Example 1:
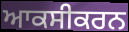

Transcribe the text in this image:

ਆਕਸੀਕਰਨ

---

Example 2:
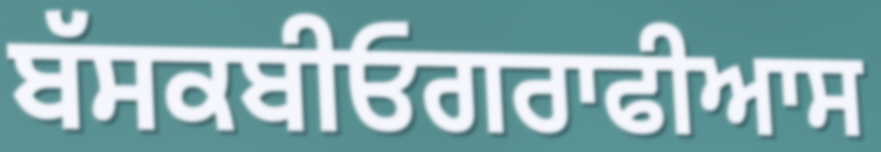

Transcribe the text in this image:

ਬੱਸਕਬੀਓਗਰਾਫੀਆਸ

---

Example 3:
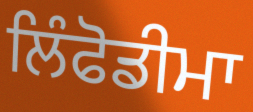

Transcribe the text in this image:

ਲਿੰਫੋਡੀਮਾ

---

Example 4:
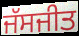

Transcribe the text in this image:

ਜੱਸਜੀਤ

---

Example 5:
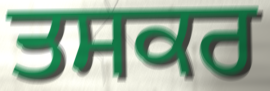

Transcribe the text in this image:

ਤਸਕਰ